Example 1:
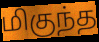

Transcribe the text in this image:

மிகுந்த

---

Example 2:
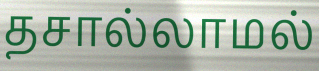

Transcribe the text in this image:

தசால்லாமல்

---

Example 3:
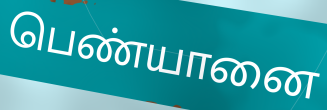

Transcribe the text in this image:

பெண்யானை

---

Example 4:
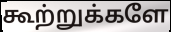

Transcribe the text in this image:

கூற்றுக்களே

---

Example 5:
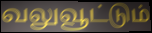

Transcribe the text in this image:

வலுவூட்டும்